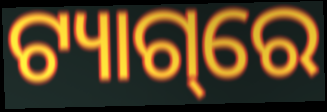
ଟ୍ୟାଗ୍‌ରେ